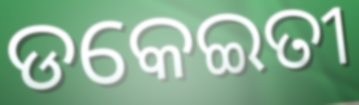
ଡକେଇତୀ